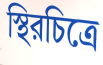
স্থিরচিত্রে